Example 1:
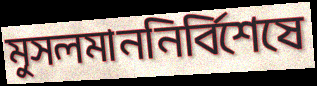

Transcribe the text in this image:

মুসলমাননির্বিশেষে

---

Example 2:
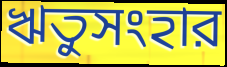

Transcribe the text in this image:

ঋতুসংহার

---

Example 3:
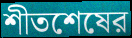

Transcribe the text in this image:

শীতশেষের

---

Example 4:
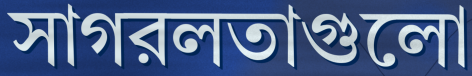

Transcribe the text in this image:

সাগরলতাগুলো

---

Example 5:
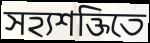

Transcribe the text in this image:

সহ্যশক্তিতে